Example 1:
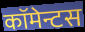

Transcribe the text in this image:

कॉमेन्टस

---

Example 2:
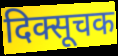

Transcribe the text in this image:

दिक्सूचक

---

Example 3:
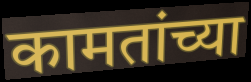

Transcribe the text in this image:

कामतांच्या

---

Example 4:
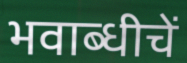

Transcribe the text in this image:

भवाब्धीचें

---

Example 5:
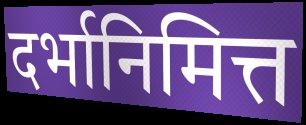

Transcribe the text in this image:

दर्भानिमित्त